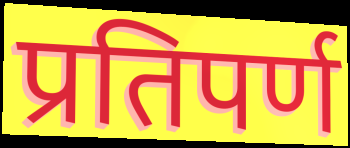
प्रतिपर्ण